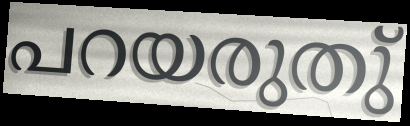
പറയരുതു്